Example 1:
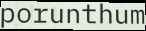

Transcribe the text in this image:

porunthum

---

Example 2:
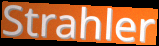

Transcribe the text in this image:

Strahler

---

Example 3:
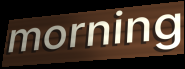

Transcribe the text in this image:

morning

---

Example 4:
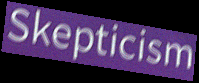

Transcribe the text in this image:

Skepticism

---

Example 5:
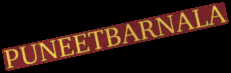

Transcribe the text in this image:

PUNEETBARNALA